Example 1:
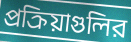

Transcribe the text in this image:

প্রক্রিয়াগুলির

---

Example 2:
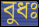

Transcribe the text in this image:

বুধঃ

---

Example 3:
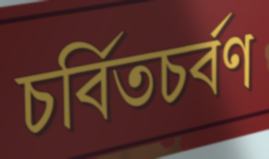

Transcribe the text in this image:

চর্বিতচর্বণ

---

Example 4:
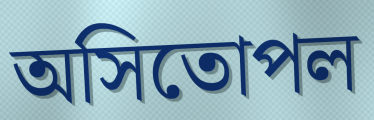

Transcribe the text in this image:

অসিতোপল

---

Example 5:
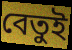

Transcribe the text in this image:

বেতুই